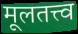
मूलतत्त्व